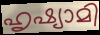
ഹൃഷ്യാമി